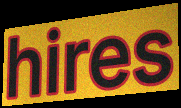
hires